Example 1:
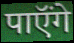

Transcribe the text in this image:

पाऍंगे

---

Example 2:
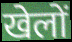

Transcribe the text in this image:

खेलों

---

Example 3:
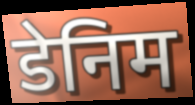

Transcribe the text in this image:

डेनिम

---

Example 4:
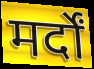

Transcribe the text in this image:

मर्दों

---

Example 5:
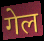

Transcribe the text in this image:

गेल